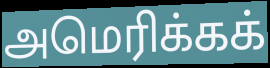
அமெரிக்கக்